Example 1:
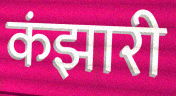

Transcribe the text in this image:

कंझारी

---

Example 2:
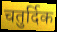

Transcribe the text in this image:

चतुर्दिक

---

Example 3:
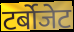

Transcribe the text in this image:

टर्बोजेट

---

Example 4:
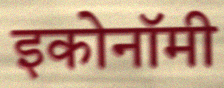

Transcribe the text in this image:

इकोनॉमी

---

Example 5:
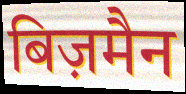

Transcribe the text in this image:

बिज़मैन